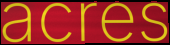
acres